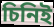
চিনিই